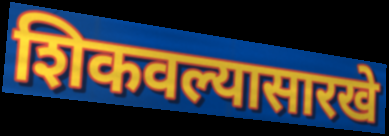
शिकवल्यासारखे